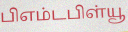
பிஎம்டபிள்யூ